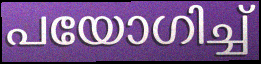
പയോഗിച്ച്